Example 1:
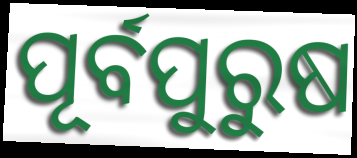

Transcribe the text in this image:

ପୂର୍ବପୁରୁଷ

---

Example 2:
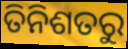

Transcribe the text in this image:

ତିନିଶତରୁ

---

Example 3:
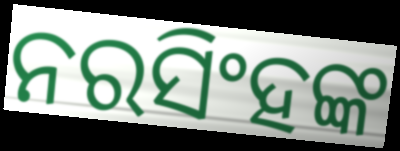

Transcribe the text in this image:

ନରସିଂହଙ୍କ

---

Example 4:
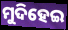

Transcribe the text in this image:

ମୁଦିହେଇ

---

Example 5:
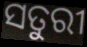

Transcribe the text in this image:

ସତୁରୀ